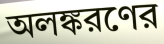
অলঙ্করণের